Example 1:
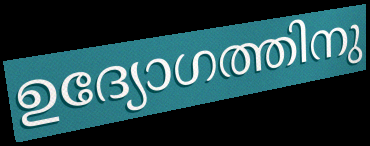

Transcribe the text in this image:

ഉദ്യോഗത്തിനു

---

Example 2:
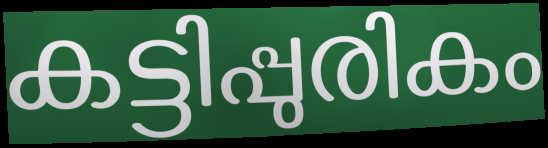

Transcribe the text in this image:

കട്ടിപ്പുരികം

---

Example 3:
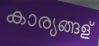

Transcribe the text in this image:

കാര്യങ്ങള്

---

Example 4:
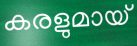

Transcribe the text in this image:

കരളുമായ്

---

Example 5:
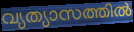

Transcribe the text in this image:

വ്യത്യാസത്തിൽ